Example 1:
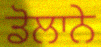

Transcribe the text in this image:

ਡੋਲਾਨੇ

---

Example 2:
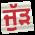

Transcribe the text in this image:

ਜੁੱੜ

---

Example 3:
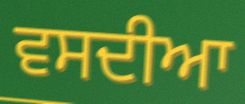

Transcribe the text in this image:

ਵਸਦੀਆ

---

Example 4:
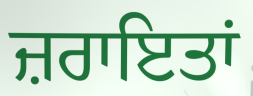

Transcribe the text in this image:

ਜ਼ਰਾਇਤਾਂ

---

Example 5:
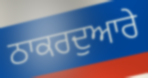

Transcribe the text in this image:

ਠਾਕਰਦੁਆਰੇ